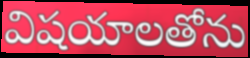
విషయాలతోను